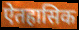
ऐतहासिक